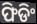
ଫିଡିଂ